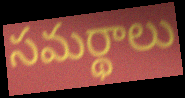
సమర్థాలు